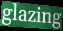
glazing